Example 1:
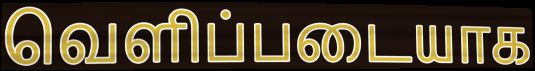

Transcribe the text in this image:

வெளிப்படையாக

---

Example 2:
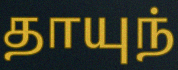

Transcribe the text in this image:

தாயுந்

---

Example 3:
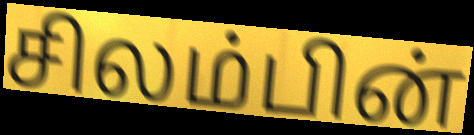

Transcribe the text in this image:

சிலம்பின்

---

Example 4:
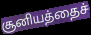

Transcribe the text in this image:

சூனியத்தைச்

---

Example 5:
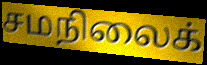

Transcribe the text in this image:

சமநிலைக்